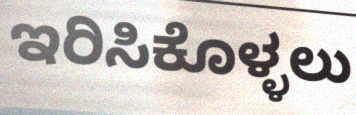
ಇರಿಸಿಕೊಳ್ಳಲು